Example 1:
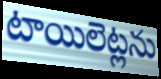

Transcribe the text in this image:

టాయిలెట్లను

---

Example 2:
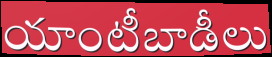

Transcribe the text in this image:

యాంటీబాడీలు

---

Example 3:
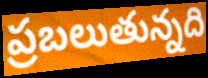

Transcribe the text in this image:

ప్రబలుతున్నది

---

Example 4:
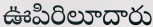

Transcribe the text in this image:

ఊపిరిలూదారు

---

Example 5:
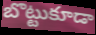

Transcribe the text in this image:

బొట్టుకూడా